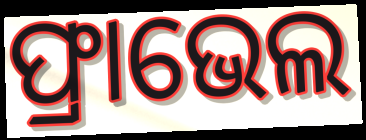
ଫ୍ରାଭେଲ